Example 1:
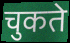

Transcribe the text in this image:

चुकते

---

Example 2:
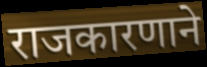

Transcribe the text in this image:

राजकारणाने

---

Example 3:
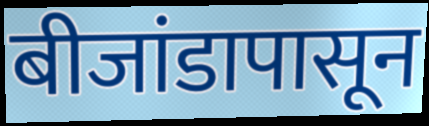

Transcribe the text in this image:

बीजांडापासून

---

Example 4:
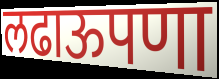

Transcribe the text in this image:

लढाऊपणा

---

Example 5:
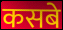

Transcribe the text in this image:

कसबे